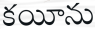
కయీను